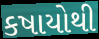
કષાયોથી